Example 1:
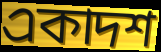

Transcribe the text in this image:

একাদশ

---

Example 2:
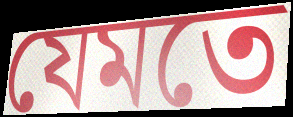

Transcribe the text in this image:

যেমতে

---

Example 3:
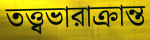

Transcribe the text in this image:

তত্ত্বভারাক্রান্ত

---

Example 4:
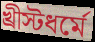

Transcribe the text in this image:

খ্রীস্টধর্মে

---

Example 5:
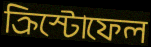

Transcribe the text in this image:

ক্রিস্টোফেল